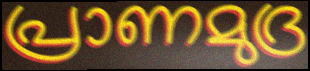
പ്രാണമുദ്ര